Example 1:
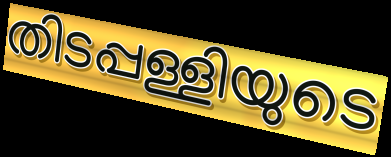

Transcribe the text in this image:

തിടപ്പള്ളിയുടെ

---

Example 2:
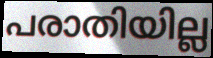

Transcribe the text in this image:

പരാതിയില്ല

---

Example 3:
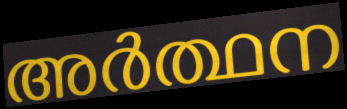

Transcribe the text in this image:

അർത്ഥന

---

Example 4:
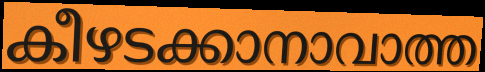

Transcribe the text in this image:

കീഴടക്കാനാവാത്ത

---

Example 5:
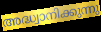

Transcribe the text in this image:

അദ്ധ്വാനിക്കുന്നു